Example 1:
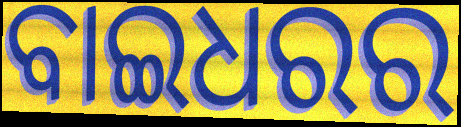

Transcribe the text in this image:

ବାଇଧରର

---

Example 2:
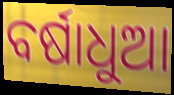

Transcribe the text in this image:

ବର୍ଷାଧୁଆ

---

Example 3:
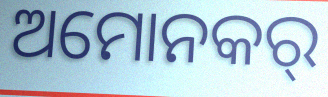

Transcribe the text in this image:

ଅମୋନକର୍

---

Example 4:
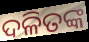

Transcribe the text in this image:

ଦଳିତଙ୍କ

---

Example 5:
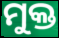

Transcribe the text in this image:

ମୁକ୍ତ